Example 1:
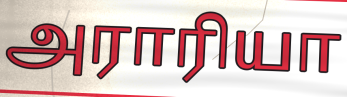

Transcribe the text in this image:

அராரியா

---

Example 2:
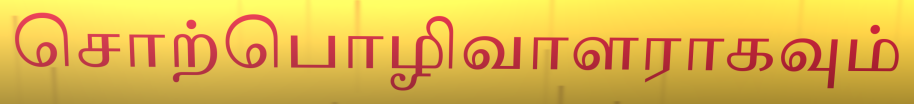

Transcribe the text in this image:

சொற்பொழிவாளராகவும்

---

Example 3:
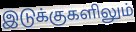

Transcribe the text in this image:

இடுக்குகளிலும்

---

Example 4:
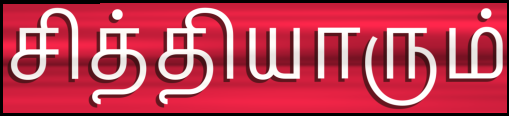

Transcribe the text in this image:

சித்தியாரும்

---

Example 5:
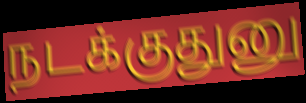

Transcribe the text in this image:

நடக்குதுனு